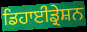
ਡਿਹਾਈਡ੍ਰੇਸ਼ਨ